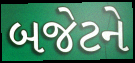
બજેટને